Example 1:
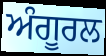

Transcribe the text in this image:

ਅੰਗੂਰਲ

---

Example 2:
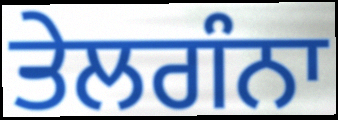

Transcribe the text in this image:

ਤੇਲਗੰਨਾ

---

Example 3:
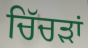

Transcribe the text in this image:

ਚਿੱਚੜਾਂ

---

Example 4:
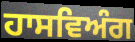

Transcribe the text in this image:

ਹਾਸਵਿਅੰਗ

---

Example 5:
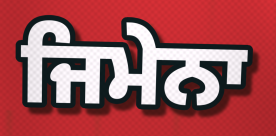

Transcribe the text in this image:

ਜਿਮੇਨਾ